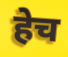
हेच